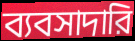
ব্যবসাদারি